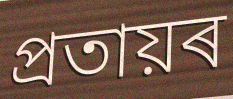
প্ৰতায়ৰ